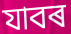
যাবৰ